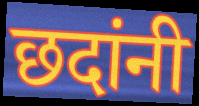
छदांनी